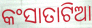
କଂସାତାଟିଆ